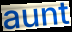
aunt